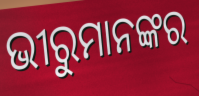
ଭୀରୁମାନଙ୍କର